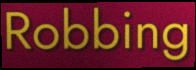
Robbing